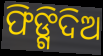
ଫିଙ୍ଗିଦିଅ